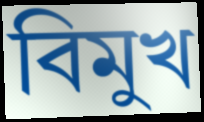
বিমুখ